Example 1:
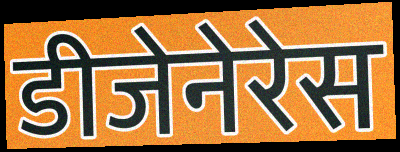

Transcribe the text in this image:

डीजेनेरेस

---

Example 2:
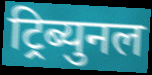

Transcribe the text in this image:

ट्रिब्युनल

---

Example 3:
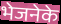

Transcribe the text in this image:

भेजनेके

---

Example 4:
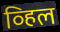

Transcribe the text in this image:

व्हिल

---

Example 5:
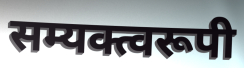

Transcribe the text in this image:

सम्यक्त्वरूपी